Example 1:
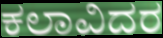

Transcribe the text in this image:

ಕಲಾವಿದರ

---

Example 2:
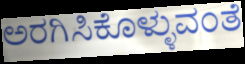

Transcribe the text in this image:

ಅರಗಿಸಿಕೊಳ್ಳುವಂತೆ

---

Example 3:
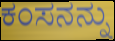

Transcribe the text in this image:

ಕಂಸನನ್ನು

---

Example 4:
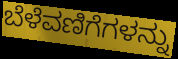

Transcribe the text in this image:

ಬೆಳೆವಣಿಗೆಗಳನ್ನು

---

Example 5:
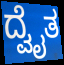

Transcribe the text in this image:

ದ್ವೈತ